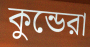
কুন্ডেরা